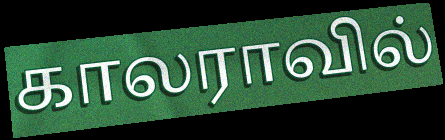
காலராவில்